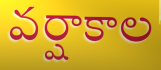
వర్షాకాల